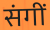
संगीं